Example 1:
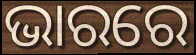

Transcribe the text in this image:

ଭାରରେ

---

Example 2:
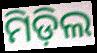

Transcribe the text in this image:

ମିଡ଼ିଲ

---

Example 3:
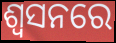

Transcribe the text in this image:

ଶ୍ଵସନରେ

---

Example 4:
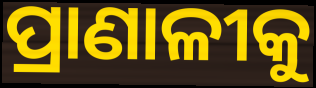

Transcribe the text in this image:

ପ୍ରାଣାଳୀକୁ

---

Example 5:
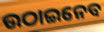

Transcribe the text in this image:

ଉଠାଇନେବ